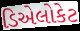
ડિએલોકેટ